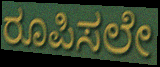
ರೂಪಿಸಲೇ